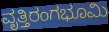
ವೃತ್ತಿರಂಗಭೂಮಿ